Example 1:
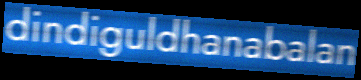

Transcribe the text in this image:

dindiguldhanabalan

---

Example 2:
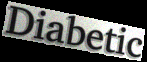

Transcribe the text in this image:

Diabetic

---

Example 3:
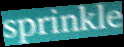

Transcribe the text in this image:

sprinkle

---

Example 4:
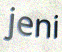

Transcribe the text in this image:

jeni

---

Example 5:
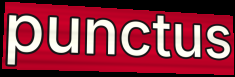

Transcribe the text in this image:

punctus